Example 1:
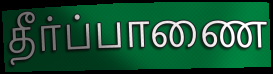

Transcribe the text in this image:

தீர்ப்பாணை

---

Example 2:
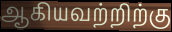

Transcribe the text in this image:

ஆகியவற்றிற்கு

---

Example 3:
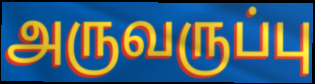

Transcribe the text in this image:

அருவருப்பு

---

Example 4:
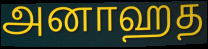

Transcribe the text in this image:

அனாஹத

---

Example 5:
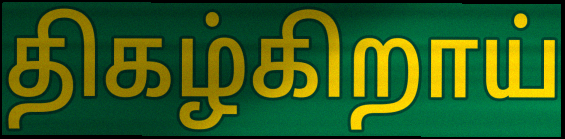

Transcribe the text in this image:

திகழ்கிறாய்